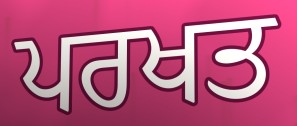
ਪਰਖਤ